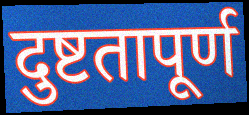
दुष्टतापूर्ण